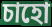
চাহো